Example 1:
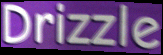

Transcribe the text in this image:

Drizzle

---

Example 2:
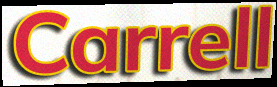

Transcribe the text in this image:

Carrell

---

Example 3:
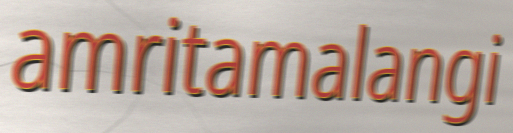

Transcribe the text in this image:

amritamalangi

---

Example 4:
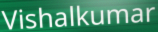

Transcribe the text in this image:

Vishalkumar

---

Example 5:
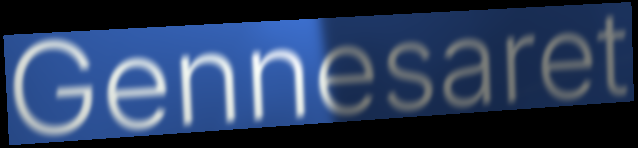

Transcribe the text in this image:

Gennesaret